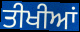
ਤੀਖੀਆਂ